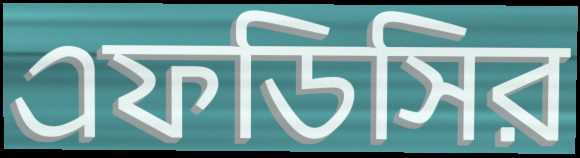
এফডিসির